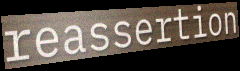
reassertion